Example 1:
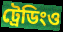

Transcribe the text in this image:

ট্রেডিংও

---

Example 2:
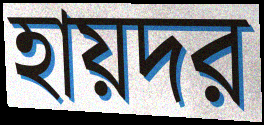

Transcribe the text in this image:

হায়দর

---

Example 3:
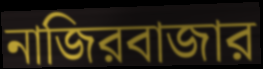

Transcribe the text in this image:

নাজিরবাজার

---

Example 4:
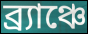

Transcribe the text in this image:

ব্র্যাঞ্চে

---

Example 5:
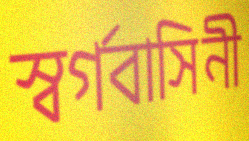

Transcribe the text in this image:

স্বর্গবাসিনী